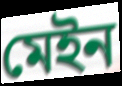
মেইন